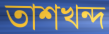
তাশখন্দ